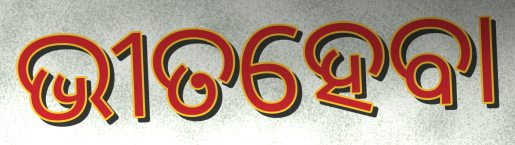
ଭୀତହେବା